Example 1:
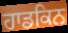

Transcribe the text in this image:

ਹਾਡਕਿਨ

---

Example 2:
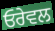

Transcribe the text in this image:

ਓਰੇਵਲ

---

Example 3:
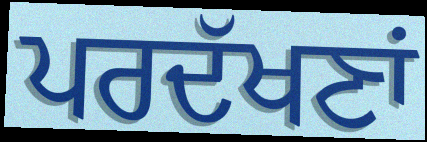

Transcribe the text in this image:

ਪਰਦੱਖਣਾਂ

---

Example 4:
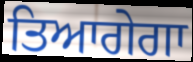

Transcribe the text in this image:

ਤਿਆਗੇਗਾ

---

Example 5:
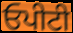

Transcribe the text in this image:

ਓਪੀਟੀ